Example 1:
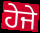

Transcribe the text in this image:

ਹੇਜੇ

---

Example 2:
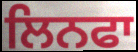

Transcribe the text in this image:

ਲਿਨਫਾ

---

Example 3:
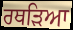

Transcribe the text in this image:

ਰਥੜਿਆ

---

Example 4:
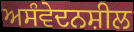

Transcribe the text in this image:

ਅਸੰਵੇਦਨਸ਼ੀਲ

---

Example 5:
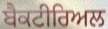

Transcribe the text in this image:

ਬੈਕਟੀਰਿਅਲ